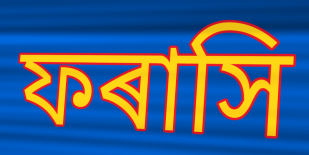
ফৰাসি